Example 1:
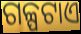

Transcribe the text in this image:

ଗଳ୍ପଟାଏ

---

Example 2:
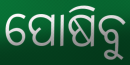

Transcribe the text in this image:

ପୋଷିବୁ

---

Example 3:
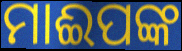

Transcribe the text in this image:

ମାଈପଙ୍କ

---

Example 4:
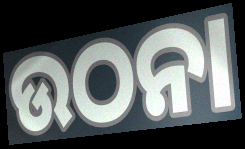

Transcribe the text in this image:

ଉଠନା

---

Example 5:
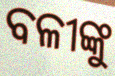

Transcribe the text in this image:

ବଳୀଙ୍କୁ